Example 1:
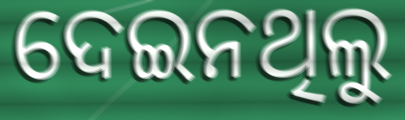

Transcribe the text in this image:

ଦେଇନଥିଲୁ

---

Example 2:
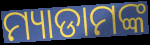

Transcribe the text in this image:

ମ୍ୟାଡାମଙ୍କ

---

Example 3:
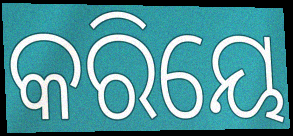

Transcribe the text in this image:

କରିୟେ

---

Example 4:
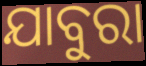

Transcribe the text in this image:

ଯାବୁରା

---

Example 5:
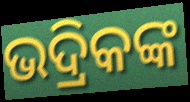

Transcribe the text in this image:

ଭଦ୍ରିକଙ୍କ